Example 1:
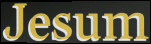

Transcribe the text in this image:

Jesum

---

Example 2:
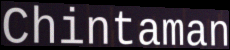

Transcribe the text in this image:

Chintaman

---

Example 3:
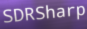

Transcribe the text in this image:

SDRSharp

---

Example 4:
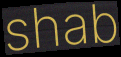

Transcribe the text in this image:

shab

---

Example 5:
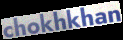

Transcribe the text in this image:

chokhkhan